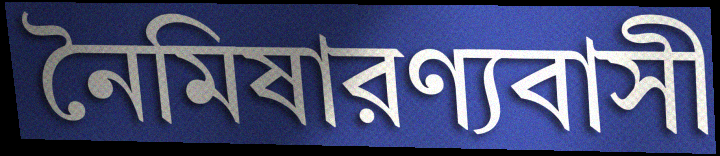
নৈমিষারণ্যবাসী